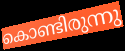
കൊണ്ടിരുന്നു